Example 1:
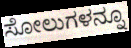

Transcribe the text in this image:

ಸೋಲುಗಳನ್ನೂ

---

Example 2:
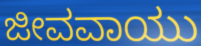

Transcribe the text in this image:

ಜೀವವಾಯು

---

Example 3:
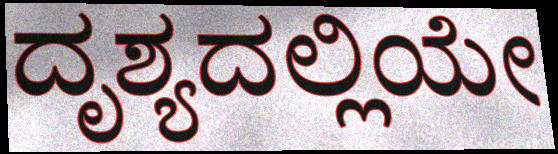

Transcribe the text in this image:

ದೃಶ್ಯದಲ್ಲಿಯೇ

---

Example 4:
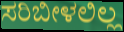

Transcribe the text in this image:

ಸರಿಬೀಳಲಿಲ್ಲ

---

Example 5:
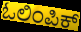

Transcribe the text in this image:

ಓಲಿಂಪಿಕ್